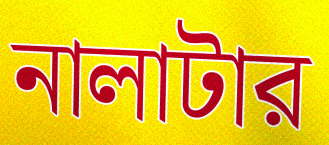
নালাটার